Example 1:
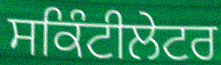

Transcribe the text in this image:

ਸਕਿੰਟੀਲੇਟਰ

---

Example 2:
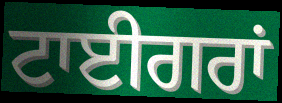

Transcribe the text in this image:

ਟਾਈਗਰਾਂ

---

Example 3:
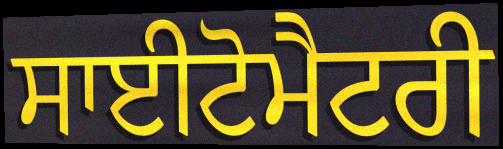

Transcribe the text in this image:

ਸਾਈਟੋਮੈਟਰੀ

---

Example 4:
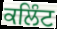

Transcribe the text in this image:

ਕਲਿੰਟ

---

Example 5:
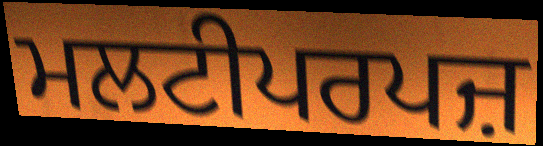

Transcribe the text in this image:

ਮਲਟੀਪਰਪਜ਼